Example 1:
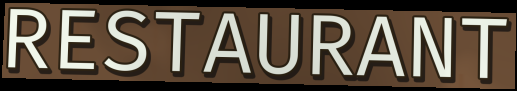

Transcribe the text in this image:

RESTAURANT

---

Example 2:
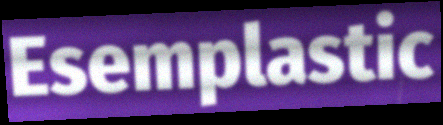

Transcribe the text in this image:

Esemplastic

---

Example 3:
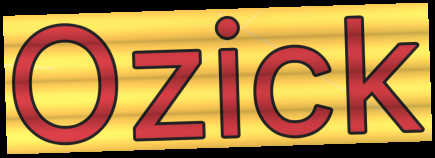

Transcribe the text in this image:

Ozick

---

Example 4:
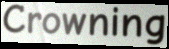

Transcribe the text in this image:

Crowning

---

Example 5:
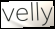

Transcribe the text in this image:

velly